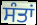
ਸੰਤਾਂ